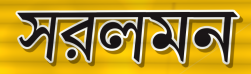
সরলমন